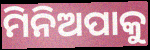
ମିନିଅପାକୁ